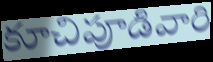
కూచిపూడివారి